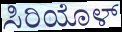
ಸಿರಿಯೊಳ್